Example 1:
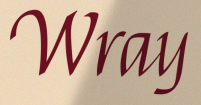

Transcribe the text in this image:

Wray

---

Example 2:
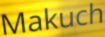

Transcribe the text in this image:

Makuch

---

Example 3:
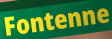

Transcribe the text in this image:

Fontenne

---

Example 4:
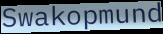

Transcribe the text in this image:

Swakopmund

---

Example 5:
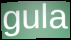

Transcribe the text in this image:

gula